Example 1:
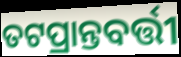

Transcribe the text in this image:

ତଟପ୍ରାନ୍ତବର୍ତ୍ତୀ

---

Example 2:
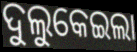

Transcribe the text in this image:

ଦୁଲୁକେଇଲା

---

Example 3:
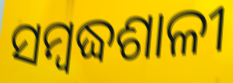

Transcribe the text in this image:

ସମ୍ବଦ୍ଧଶାଳୀ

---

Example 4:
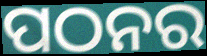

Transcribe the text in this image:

ପଠନର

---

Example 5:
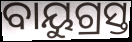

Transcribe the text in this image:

ବାୟୁଗ୍ରସ୍ତ